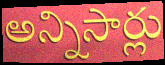
అన్నిసార్లు